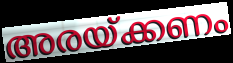
അരയ്‌ക്കണം